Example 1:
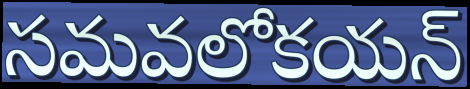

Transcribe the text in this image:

సమవలోకయన్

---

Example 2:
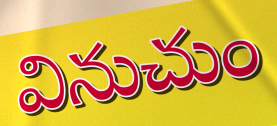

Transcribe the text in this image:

వినుచుం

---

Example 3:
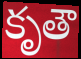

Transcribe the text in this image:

కృతౌ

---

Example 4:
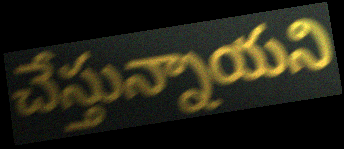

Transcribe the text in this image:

చేస్తున్నాయని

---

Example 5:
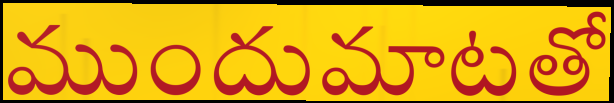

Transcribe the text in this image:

ముందుమాటతో